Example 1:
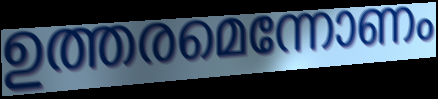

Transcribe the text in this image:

ഉത്തരമെന്നോണം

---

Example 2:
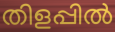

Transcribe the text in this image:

തിളപ്പിൽ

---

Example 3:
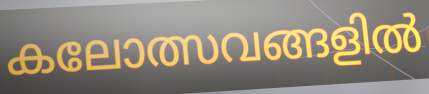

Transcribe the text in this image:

കലോത്സവങ്ങളിൽ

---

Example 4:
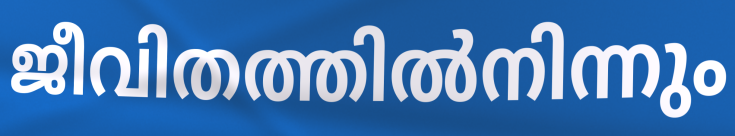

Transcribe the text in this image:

ജീവിതത്തിൽനിന്നും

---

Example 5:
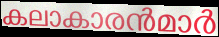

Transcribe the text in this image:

കലാകാരൻമാർ